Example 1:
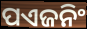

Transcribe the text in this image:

ପଏଜନିଂ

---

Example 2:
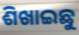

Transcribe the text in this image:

ଶିଖାଇଛୁ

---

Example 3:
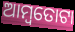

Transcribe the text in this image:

ଆମ୍ବତୋଟା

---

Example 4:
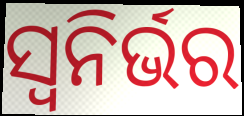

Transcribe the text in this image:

ସ୍ୱନିର୍ଭର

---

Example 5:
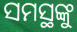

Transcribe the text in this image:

ସମସ୍ଥଙ୍କୁ